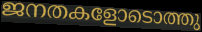
ജനതകളോടൊത്തു